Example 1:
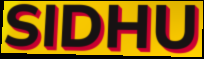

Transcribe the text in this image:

SIDHU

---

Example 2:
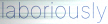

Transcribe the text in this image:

laboriously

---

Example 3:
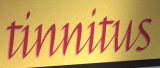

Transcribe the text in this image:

tinnitus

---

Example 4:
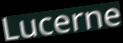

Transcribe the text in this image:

Lucerne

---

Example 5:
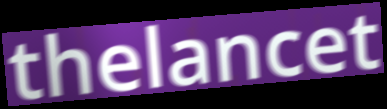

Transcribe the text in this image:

thelancet